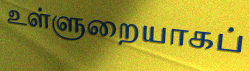
உள்ளுறையாகப்